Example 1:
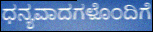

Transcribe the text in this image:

ಧನ್ಯವಾದಗಳೊಂದಿಗೆ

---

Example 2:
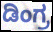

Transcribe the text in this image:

ಡಿಂಗ್ರ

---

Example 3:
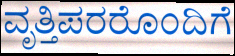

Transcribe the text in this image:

ವೃತ್ತಿಪರರೊಂದಿಗೆ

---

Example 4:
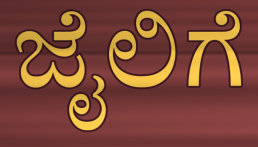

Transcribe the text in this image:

ಜೈಲಿಗೆ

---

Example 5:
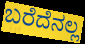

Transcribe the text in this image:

ಬರೆದೆನಲ್ಲ